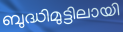
ബുദ്ധിമുട്ടിലായി